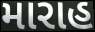
મારાહ